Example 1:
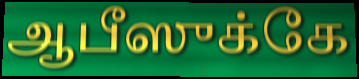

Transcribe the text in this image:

ஆபீஸுக்கே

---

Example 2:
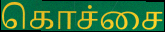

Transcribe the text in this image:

கொச்சை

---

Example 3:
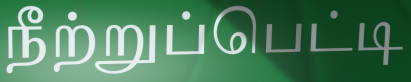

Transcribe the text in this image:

நீற்றுப்பெட்டி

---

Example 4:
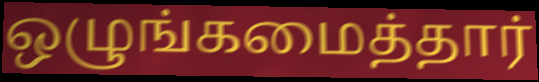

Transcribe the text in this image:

ஒழுங்கமைத்தார்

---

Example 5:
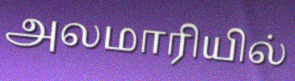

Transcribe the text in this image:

அலமாரியில்